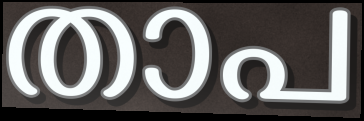
താപ